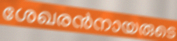
ശേഖരൻനായരുടെ